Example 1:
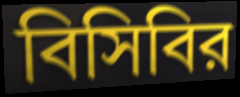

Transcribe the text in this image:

বিসিবির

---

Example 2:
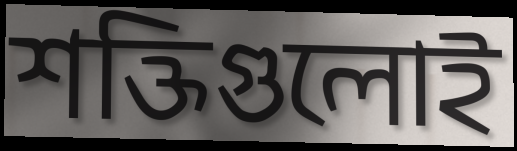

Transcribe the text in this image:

শক্তিগুলোই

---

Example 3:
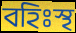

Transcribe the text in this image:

বহিঃস্থ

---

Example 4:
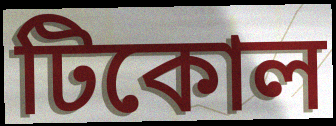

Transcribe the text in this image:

টিকোল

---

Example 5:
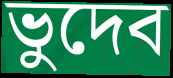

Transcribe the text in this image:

ভুদেব